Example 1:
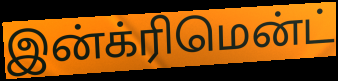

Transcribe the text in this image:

இன்க்ரிமென்ட்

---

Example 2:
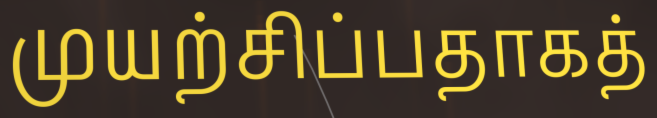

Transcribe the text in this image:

முயற்சிப்பதாகத்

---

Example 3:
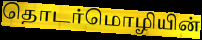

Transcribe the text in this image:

தொடர்மொழியின்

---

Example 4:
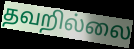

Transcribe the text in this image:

தவறில்லை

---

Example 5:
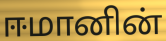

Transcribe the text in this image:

ஈமானின்